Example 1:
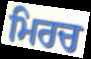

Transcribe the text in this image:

ਮਿਰਚ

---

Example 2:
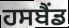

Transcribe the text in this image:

ਹਸਬੈਂਡ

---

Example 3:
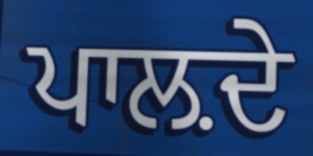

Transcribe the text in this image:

ਪਾਲ਼ਦੇ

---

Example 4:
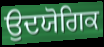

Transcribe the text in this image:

ਉਦਯੋਗਿਕ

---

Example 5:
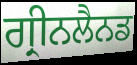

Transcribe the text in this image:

ਗ੍ਰੀਨਲੈਨਡ